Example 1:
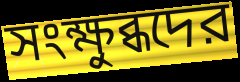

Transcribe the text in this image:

সংক্ষুব্ধদের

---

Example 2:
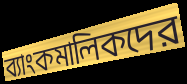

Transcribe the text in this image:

ব্যাংকমালিকদের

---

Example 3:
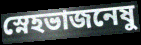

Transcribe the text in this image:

স্নেহভাজনেষু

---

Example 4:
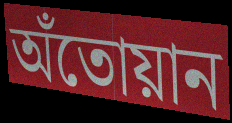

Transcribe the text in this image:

অঁতোয়ান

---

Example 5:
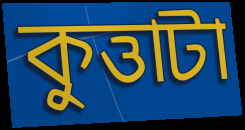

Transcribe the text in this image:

কুত্তাটা